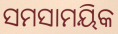
ସମସାମୟିକ